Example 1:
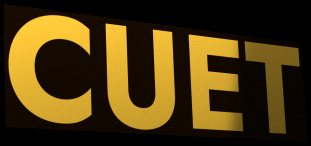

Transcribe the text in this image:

CUET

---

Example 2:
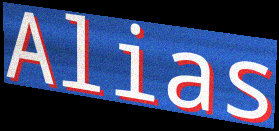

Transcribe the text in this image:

Alias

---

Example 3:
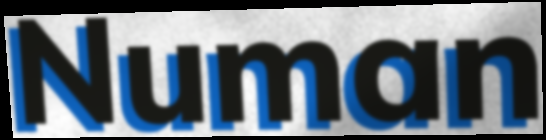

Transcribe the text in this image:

Numan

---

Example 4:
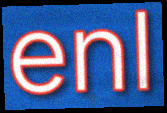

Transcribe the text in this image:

enl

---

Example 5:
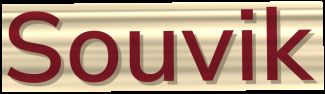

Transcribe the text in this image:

Souvik